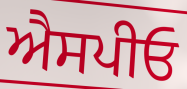
ਐਸਪੀਓ